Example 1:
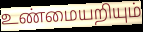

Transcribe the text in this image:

உண்மையறியும்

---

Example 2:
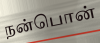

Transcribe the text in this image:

நன்பொன்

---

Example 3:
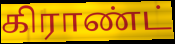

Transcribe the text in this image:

கிராண்ட்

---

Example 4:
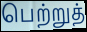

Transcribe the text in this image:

பெற்றுத்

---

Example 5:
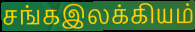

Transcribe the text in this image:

சங்கஇலக்கியம்